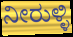
ನೀರುಳ್ಳಿ